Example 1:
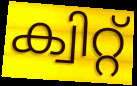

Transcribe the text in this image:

ക്വിറ്റ്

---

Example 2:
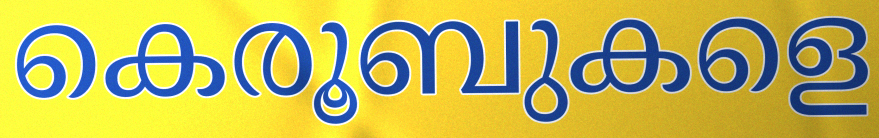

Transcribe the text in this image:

കെരൂബുകളെ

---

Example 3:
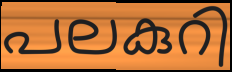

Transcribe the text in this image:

പലകുറി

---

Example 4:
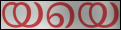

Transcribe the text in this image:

യയെ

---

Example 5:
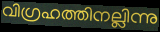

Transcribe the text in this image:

വിഗ്രഹത്തിനല്ലിന്നു